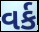
વર્ક